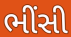
ભીંસી